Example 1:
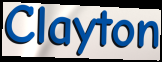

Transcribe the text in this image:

Clayton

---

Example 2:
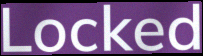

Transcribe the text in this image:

Locked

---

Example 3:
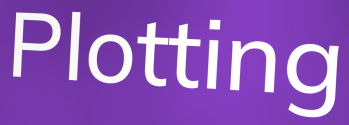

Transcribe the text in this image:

Plotting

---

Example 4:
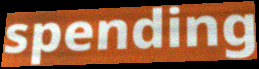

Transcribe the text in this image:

spending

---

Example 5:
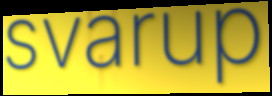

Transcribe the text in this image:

svarup